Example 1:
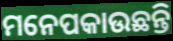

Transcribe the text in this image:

ମନେପକାଉଛନ୍ତି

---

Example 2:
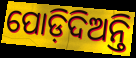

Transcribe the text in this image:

ପୋଡ଼ିଦିଅନ୍ତି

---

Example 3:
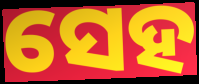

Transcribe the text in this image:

ସେହ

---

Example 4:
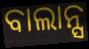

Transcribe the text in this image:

ବାଲାନ୍ସ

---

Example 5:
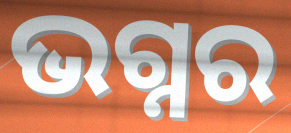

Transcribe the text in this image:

ଭଗ୍ନର